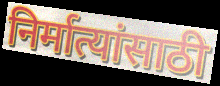
निर्मात्यांसाठी